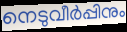
നെടുവീർപ്പിനും